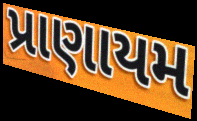
પ્રાણાયમ